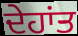
ਦੇਹਾਂਤ